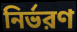
নির্ভরণ